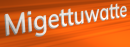
Migettuwatte